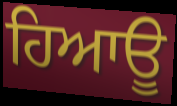
ਹਿਆਊ